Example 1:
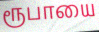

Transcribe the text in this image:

ரூபாயை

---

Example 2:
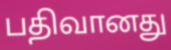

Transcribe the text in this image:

பதிவானது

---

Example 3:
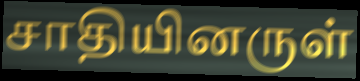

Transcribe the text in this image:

சாதியினருள்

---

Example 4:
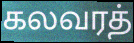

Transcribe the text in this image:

கலவரத்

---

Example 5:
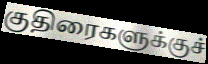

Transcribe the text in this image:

குதிரைகளுக்குச்